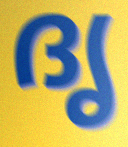
ദൃ